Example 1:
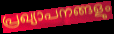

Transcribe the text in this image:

പ്രഖ്യാപനങ്ങളും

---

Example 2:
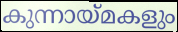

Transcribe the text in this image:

കുന്നായ്മകളും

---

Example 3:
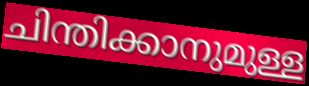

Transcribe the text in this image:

ചിന്തിക്കാനുമുള്ള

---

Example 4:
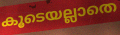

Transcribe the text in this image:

കൂടെയല്ലാതെ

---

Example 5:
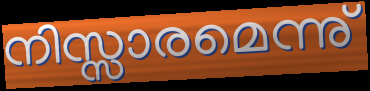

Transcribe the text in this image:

നിസ്സാരമെന്നു്